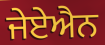
ਜੇਏਐਨ